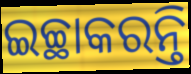
ଇଚ୍ଛାକରନ୍ତି